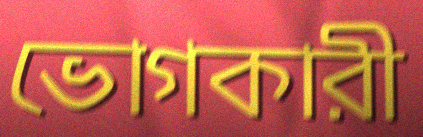
ভোগকারী